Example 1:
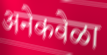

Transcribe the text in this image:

अनेकवेळा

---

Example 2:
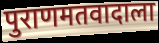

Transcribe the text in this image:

पुराणमतवादाला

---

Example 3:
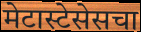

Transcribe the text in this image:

मेटास्टेसेसचा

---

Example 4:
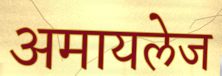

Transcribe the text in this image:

अमायलेज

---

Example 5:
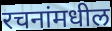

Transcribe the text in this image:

रचनांमधील